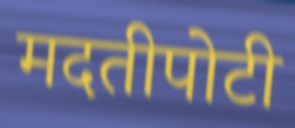
मदतीपोटी